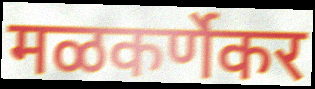
मळकर्णेकर